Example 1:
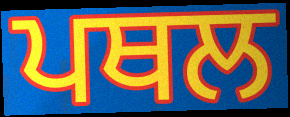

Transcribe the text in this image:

ਪਥਲ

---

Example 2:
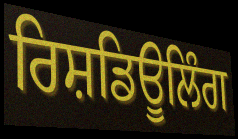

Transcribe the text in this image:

ਰਿਸ਼ਡਿਊਲਿੰਗ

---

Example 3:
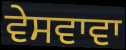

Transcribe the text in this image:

ਵੇਸਵਾਵਾ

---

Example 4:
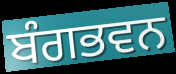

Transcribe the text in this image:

ਬੰਗਭਵਨ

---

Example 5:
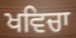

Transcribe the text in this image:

ਖਵਿਚਾ